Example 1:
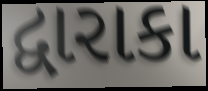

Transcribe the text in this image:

દ્વારાકા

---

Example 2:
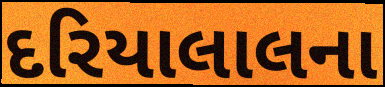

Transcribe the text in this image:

દરિયાલાલના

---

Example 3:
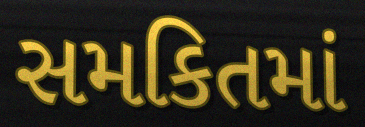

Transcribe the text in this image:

સમકિતમાં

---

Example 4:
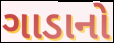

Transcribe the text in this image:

ગાડાનો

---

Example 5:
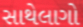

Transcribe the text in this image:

સાથેલાગો